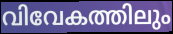
വിവേകത്തിലും